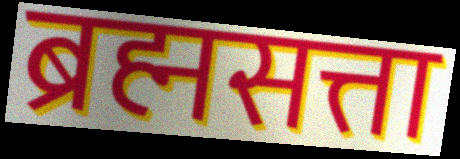
ब्रह्मसत्ता